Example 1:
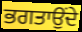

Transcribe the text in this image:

ਭਗਤਾਉਂਦੇ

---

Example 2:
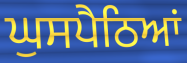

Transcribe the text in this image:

ਘੁਸਪੈਠਿਆਂ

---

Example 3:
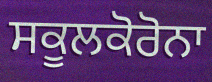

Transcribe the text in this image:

ਸਕੂਲਕੋਰੋਨਾ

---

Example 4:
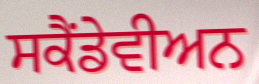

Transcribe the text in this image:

ਸਕੈਂਡੇਵੀਅਨ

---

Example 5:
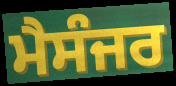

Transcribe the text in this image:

ਮੈਸੰਜਰ